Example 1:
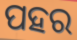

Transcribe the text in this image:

ପହର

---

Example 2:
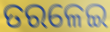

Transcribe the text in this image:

ତରଳେଇ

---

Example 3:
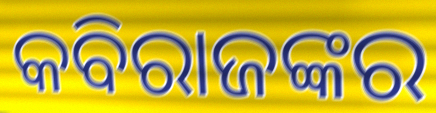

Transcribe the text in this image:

କବିରାଜଙ୍କର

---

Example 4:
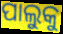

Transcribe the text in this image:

ପାଲୁକୁ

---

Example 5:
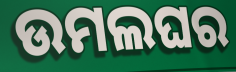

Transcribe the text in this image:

ଉମଲଘର